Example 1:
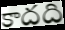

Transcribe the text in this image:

కాదది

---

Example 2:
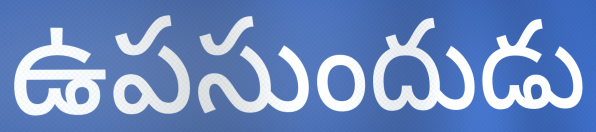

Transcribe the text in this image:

ఉపసుందుడు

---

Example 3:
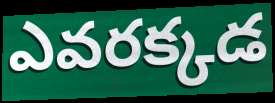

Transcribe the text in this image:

ఎవరక్కడ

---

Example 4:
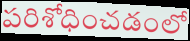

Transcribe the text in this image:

పరిశోధించడంలో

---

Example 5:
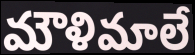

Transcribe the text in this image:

మౌళిమాలే